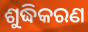
ଶୁଦ୍ଧିକରଣ